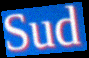
Sud